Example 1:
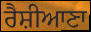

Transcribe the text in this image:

ਰੈਸ਼ੀਆਣਾ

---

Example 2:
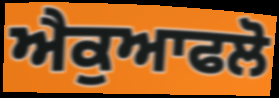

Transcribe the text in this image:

ਐਕੁਆਫਲੋ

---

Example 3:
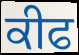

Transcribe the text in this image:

ਕੀਫ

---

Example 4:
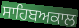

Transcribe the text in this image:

ਸਾਹਿਬਅਕਾਲ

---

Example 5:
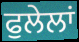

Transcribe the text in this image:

ਫੁਲੇਲਾਂ